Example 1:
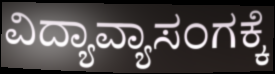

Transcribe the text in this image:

ವಿದ್ಯಾವ್ಯಾಸಂಗಕ್ಕೆ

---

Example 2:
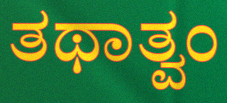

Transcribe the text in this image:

ತಥಾತ್ವಂ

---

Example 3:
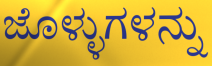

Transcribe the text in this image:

ಜೊಳ್ಳುಗಳನ್ನು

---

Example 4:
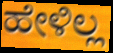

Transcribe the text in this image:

ಹೇಳಿಲ್ಲ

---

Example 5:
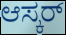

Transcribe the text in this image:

ಆಸ್ಕರ್